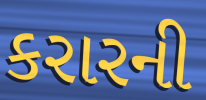
કરારની